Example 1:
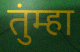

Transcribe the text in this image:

तुंम्हा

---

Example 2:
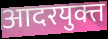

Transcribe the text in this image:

आदरयुक्त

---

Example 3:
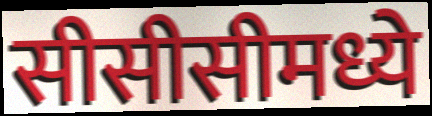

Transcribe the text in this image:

सीसीसीमध्ये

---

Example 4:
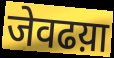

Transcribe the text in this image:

जेवढय़ा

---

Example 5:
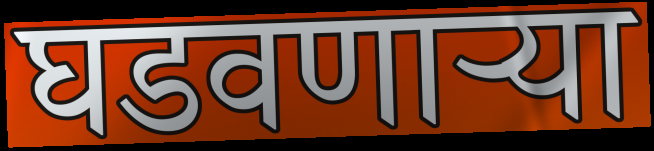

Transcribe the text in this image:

घडवणाऱ्या